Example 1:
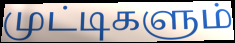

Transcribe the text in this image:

முட்டிகளும்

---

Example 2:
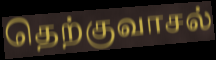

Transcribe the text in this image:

தெற்குவாசல்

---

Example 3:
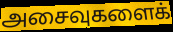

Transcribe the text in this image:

அசைவுகளைக்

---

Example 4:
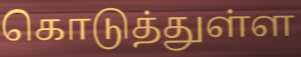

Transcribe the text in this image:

கொடுத்துள்ள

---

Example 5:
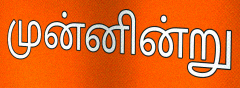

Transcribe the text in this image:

முன்னின்று